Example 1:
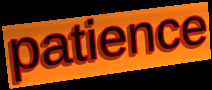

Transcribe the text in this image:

patience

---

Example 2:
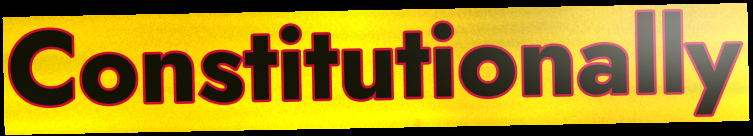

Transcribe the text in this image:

Constitutionally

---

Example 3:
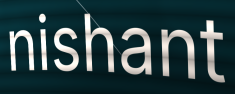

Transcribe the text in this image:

nishant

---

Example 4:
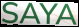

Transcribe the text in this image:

SAYA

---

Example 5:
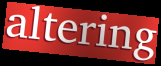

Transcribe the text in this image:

altering